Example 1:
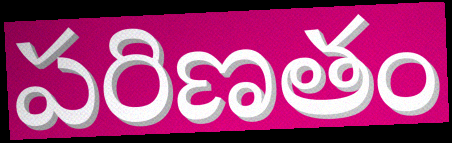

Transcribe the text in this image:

పరిణతం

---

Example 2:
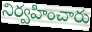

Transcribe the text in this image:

నిర్వహించారు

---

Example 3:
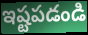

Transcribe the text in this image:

ఇష్టపడండి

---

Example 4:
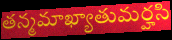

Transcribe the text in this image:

తన్మమాఖ్యాతుమర్హసి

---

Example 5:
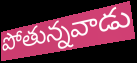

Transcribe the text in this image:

పోతున్నవాడు